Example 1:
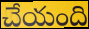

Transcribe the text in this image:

చేయంది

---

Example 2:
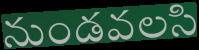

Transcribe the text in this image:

నుండవలసి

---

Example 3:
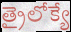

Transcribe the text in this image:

త్రైలోక్యే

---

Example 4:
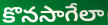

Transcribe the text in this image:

కొనసాగేలా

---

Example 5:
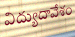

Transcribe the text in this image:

విద్యుదావేశం